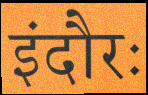
इंदौरः